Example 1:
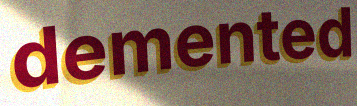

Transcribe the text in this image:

demented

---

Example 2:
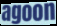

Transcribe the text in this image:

agoon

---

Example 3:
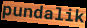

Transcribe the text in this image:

pundalik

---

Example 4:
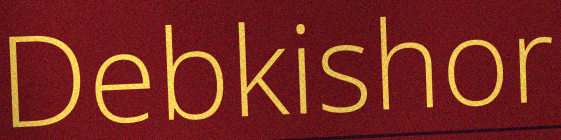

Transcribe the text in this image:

Debkishor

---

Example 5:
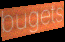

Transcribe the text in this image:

bugets